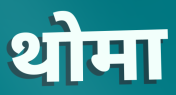
थोमा